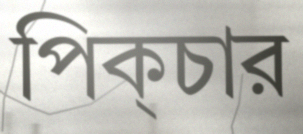
পিক্চার